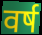
वर्ष